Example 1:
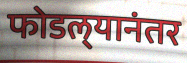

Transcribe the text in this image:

फोडल्यानंतर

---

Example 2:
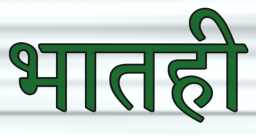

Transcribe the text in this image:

भातही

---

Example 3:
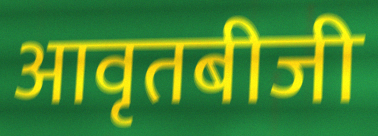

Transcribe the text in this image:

आवृतबीजी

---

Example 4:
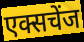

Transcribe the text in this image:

एक्सचेंज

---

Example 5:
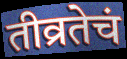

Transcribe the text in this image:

तीव्रतेचं